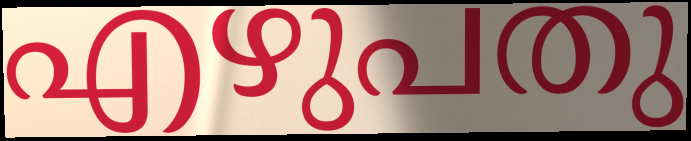
എഴുപതു